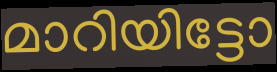
മാറിയിട്ടോ